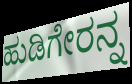
ಹುಡಿಗೇರನ್ನ